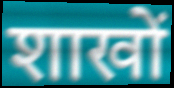
शाखों